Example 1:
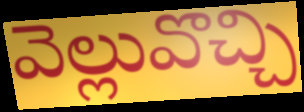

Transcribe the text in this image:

వెల్లువొచ్చి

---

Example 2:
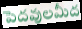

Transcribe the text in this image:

పెదవులమీద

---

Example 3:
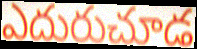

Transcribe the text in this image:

ఎదురుచూడ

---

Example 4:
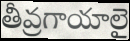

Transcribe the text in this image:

తీవ్రగాయాలై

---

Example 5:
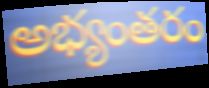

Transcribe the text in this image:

అభ్యంతరం